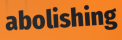
abolishing